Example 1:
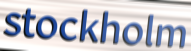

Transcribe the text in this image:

stockholm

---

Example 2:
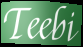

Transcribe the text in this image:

Teebi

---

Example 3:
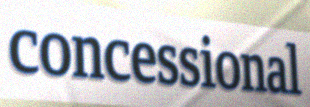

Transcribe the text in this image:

concessional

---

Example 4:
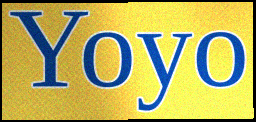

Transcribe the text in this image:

Yoyo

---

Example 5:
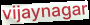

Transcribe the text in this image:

vijaynagar